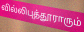
வில்லிபுத்தூராரும்